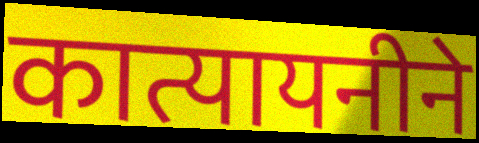
कात्यायनीने